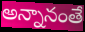
అన్నానంతే